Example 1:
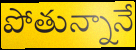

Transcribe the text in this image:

పోతున్నానే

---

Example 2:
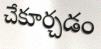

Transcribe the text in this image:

చేకూర్చడం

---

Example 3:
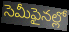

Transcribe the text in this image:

సెమీఫైనల్లో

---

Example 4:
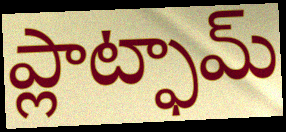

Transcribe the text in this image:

ప్లాట్ఫామ్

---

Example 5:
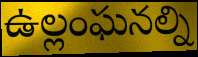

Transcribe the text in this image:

ఉల్లంఘనల్ని